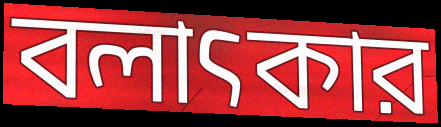
বলাৎকার